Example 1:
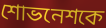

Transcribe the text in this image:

শোভনেশকে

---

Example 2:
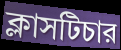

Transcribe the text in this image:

ক্লাসটিচার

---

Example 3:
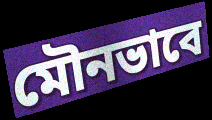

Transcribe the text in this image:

মৌনভাবে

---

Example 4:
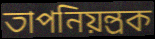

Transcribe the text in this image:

তাপনিয়ন্ত্রক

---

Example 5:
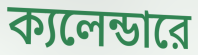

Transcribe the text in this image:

ক্যলেন্ডারে